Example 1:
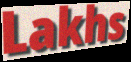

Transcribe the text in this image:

Lakhs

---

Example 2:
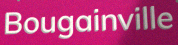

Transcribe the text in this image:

Bougainville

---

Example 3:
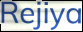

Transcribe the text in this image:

Rejiya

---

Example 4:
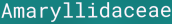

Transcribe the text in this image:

Amaryllidaceae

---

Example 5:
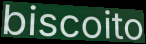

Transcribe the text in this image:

biscoito